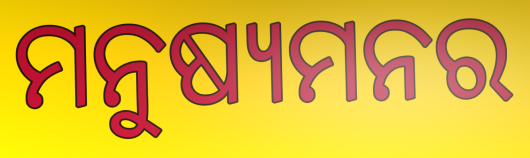
ମନୁଷ୍ୟମନର